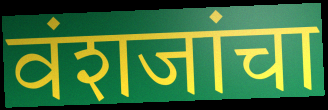
वंशजांचा